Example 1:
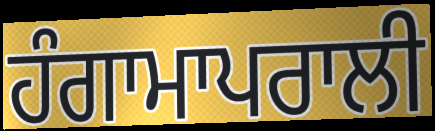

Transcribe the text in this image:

ਹੰਗਾਮਾਪਰਾਲੀ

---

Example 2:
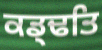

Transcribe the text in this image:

ਕਡ੍ਢਤਿ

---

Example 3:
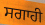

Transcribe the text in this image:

ਸਗਾਹੀ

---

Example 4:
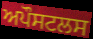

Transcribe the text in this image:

ਅਪੌਸਟਲਸ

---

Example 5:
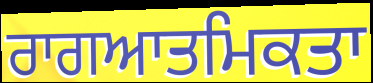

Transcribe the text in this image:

ਰਾਗਆਤਮਿਕਤਾ